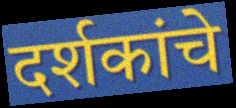
दर्शकांचे